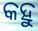
କହୁ